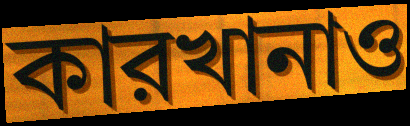
কারখানাও